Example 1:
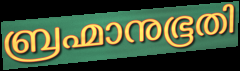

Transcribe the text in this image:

ബ്രഹ്മാനുഭൂതി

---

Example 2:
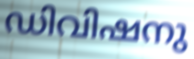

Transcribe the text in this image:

ഡിവിഷനു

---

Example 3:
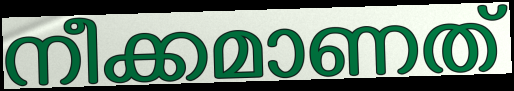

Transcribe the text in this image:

നീക്കമാണത്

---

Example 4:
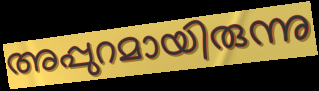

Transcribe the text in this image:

അപ്പുറമായിരുന്നു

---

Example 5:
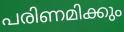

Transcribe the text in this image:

പരിണമിക്കും